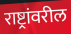
राष्ट्रांवरील